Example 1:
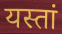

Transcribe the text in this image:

यस्तां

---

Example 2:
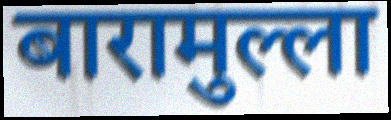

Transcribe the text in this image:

बारामुल्ला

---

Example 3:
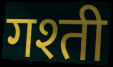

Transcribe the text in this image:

गश्‍ती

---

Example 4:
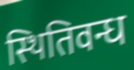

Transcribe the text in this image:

स्थितिवन्ध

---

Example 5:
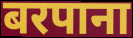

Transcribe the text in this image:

बरपाना